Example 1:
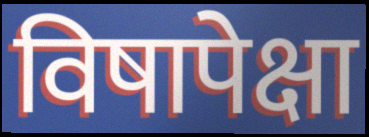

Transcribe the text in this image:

विषापेक्षा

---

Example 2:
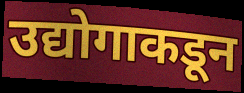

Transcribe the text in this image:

उद्योगाकडून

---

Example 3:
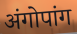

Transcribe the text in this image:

अंगोपांग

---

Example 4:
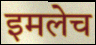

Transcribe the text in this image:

इमलेच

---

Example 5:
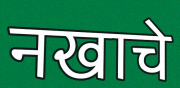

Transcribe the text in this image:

नखाचे